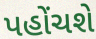
પહોંચશે